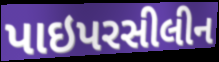
પાઇપરસીલીન